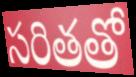
సరితతో